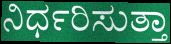
ನಿರ್ಧರಿಸುತ್ತಾ